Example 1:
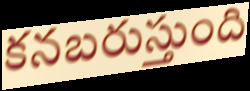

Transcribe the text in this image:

కనబరుస్తుంది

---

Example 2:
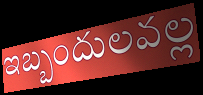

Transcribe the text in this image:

ఇబ్బందులవల్ల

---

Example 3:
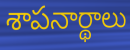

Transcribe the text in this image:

శాపనార్థాలు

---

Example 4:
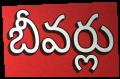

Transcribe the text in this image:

బీవర్లు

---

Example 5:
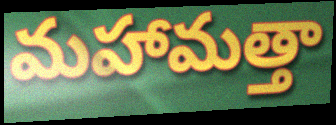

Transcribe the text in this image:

మహామత్తా